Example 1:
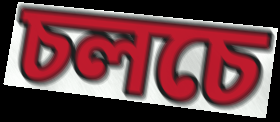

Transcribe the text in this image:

চলচে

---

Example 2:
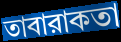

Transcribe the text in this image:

তাবারাকতা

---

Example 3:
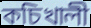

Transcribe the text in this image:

কচিখালী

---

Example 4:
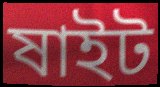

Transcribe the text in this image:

ষাইট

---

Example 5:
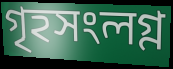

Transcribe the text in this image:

গৃহসংলগ্ন